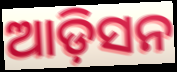
ଆଡ଼ିସନ